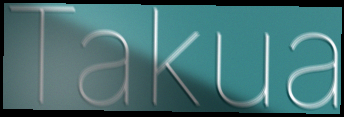
Takua